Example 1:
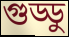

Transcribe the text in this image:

গুড্ডু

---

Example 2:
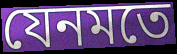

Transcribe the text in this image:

যেনমতে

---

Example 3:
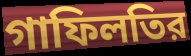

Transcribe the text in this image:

গাফিলতির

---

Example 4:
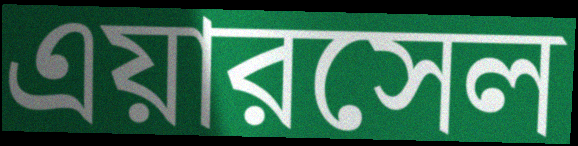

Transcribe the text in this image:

এয়ারসেল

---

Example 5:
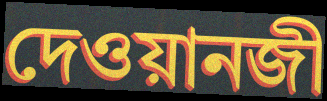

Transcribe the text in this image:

দেওয়ানজী